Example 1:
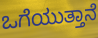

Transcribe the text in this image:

ಒಗೆಯುತ್ತಾನೆ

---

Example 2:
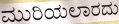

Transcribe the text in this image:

ಮುರಿಯಲಾರದು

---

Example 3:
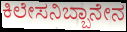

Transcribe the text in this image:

ಕಿಲೇಸನಿಬ್ಬಾನೇನ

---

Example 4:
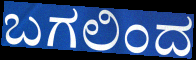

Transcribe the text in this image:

ಬಗಲಿಂದ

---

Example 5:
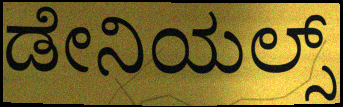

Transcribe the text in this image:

ಡೇನಿಯಲ್ಸ್